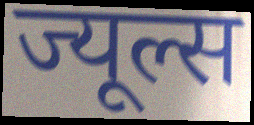
ज्यूल्स